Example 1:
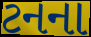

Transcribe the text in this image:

ટનના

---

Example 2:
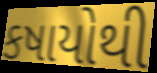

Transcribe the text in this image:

કષાયોથી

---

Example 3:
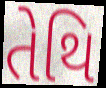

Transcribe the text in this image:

તેથિ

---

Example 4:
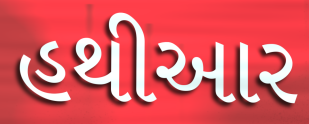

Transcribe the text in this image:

હથીઆર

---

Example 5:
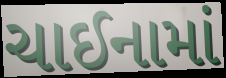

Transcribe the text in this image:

ચાઈનામાં